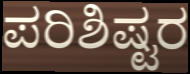
ಪರಿಶಿಷ್ಟರ